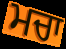
ਮਚਾ